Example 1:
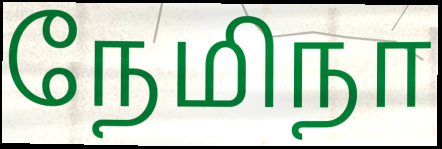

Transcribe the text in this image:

நேமிநா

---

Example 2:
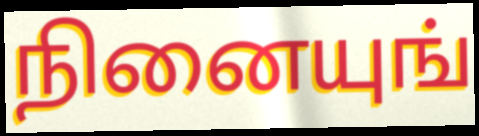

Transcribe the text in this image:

நினையுங்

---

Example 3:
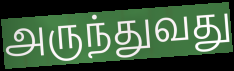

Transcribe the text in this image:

அருந்துவது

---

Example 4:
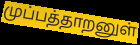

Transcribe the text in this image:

முப்பத்தாறனுள்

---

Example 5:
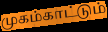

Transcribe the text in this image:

முகம்காட்டும்